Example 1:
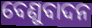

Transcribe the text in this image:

ବେଣୁବାଦନ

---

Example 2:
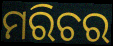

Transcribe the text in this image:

ମରିଚର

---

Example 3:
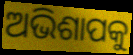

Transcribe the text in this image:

ଅଭିଶାପକୁ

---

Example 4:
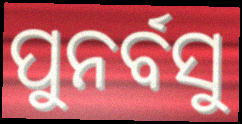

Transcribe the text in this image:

ପୁନର୍ବସୁ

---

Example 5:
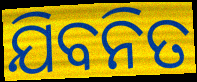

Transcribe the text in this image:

ଯିବନିତ